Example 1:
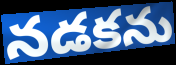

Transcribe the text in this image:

నడకను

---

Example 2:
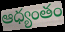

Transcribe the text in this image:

ఆధ్యంతం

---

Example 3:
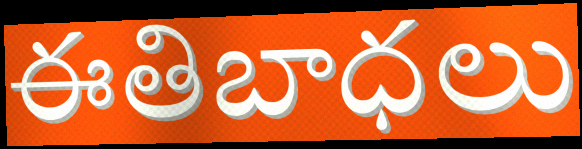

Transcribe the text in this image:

ఈతిబాధలు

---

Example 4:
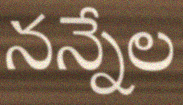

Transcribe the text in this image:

నన్నేల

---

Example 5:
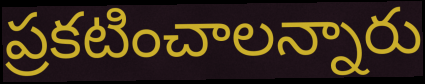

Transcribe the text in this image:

ప్రకటించాలన్నారు